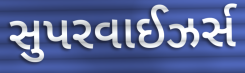
સુપરવાઈઝર્સ